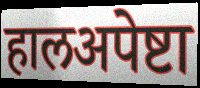
हालअपेष्टा